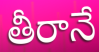
తీరానే